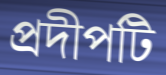
প্রদীপটি